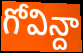
గోవిన్దా